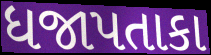
ધજાપતાકા